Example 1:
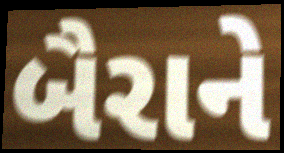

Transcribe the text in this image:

બૈરાને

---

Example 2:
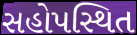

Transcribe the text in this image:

સહોપસ્થિત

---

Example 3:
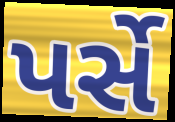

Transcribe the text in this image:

પર્સે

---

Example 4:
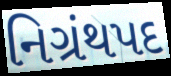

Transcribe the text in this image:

નિગ્રંથપદ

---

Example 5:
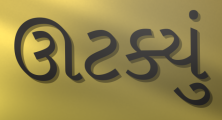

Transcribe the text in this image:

ઊટક્યું